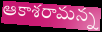
ఆకాశరామన్న